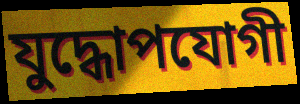
যুদ্ধোপযোগী